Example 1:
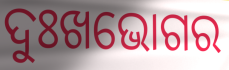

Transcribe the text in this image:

ଦୁଃଖଭୋଗର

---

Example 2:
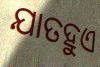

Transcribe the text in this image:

ଯାତହୁଏ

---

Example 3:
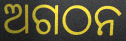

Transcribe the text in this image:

ଅଗଠନ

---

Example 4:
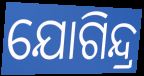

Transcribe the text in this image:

ଯୋଗିନ୍ଦ୍ର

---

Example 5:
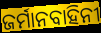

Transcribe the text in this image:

ଜର୍ମାନବାହିନୀ